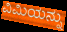
ವಿಮಿಯನ್ನು